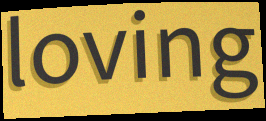
loving